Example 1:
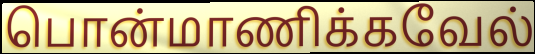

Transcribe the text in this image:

பொன்மாணிக்கவேல்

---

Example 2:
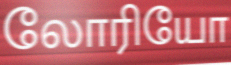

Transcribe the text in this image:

லோரியோ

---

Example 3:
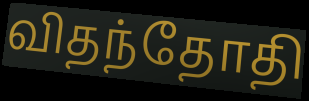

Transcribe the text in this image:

விதந்தோதி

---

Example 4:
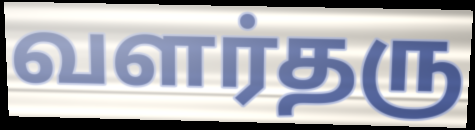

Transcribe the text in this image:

வளர்தரு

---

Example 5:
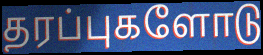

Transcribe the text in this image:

தரப்புகளோடு